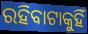
ରହିବାଟାକୁହିଁ